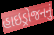
હાઇડ્રોજનનું